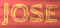
JOSE